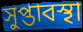
সুপ্তাবস্থা